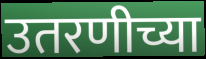
उतरणीच्या